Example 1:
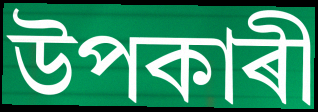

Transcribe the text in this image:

উপকাৰী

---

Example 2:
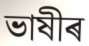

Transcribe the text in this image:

ভাষীৰ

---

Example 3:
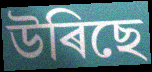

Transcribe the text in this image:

উৰিছে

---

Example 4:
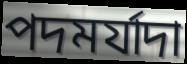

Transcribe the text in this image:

পদমৰ্যাদা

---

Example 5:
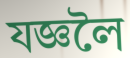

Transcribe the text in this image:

যজ্ঞলৈ